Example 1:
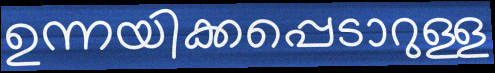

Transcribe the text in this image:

ഉന്നയിക്കപ്പെടാറുള്ള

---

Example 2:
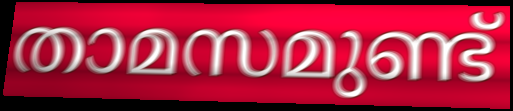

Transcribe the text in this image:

താമസമുണ്ട്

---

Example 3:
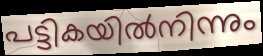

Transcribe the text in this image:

പട്ടികയിൽനിന്നും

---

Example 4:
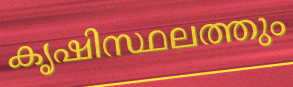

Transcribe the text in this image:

കൃഷിസ്ഥലത്തും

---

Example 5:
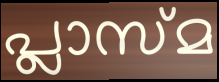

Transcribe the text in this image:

പ്ലാസ്മ